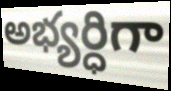
అభ్యర్ధిగా